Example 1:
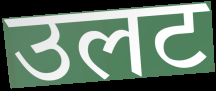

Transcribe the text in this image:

उलट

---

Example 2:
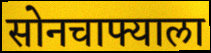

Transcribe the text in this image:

सोनचाफ्याला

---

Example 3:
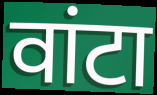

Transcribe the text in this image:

वांटा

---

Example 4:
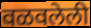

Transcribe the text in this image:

वळवलेली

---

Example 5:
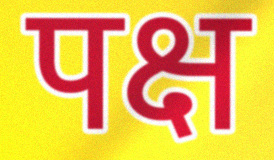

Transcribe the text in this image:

पक्ष